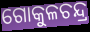
ଗୋକୁଳଚନ୍ଦ୍ର